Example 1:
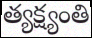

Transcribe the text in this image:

త్యక్ష్యంతి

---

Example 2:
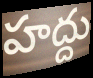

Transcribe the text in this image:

హద్దు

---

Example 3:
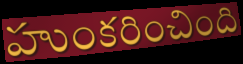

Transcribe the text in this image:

హుంకరించింది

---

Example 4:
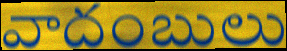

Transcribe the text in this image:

వాదంబులు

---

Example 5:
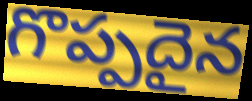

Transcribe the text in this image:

గొప్పదైన